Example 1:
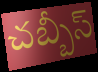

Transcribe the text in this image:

చబ్బీస్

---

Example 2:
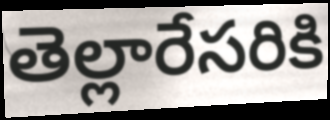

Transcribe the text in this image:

తెల్లారేసరికి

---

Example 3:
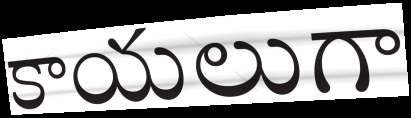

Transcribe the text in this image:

కాయలుగా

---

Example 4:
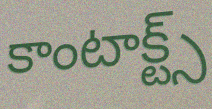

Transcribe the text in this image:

కాంటాక్ట్స్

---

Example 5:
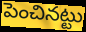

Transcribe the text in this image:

పెంచినట్టు